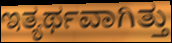
ಇತ್ಯರ್ಥವಾಗಿತ್ತು